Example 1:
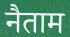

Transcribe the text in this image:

नैताम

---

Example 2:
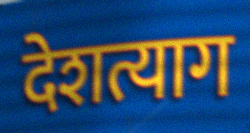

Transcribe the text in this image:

देशत्याग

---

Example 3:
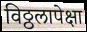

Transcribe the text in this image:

विठ्ठलापेक्षा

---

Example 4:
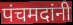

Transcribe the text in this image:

पंचमदांनी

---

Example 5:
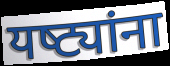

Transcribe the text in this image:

यष्ट्यांना